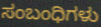
ಸಂಬಂಧಿಗಳು